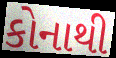
કોનાથી